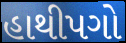
હાથીપગો